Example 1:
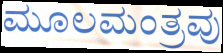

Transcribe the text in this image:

ಮೂಲಮಂತ್ರವು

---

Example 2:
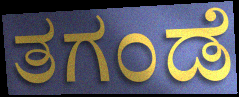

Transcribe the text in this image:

ತಗಂಡೆ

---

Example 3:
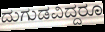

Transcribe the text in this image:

ದುಗುಡವಿದ್ದರೂ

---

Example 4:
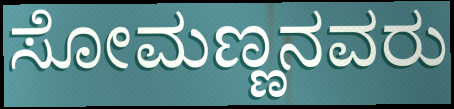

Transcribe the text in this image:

ಸೋಮಣ್ಣನವರು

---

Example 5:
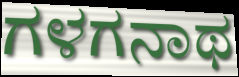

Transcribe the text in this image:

ಗಳಗನಾಥ